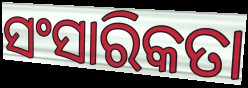
ସଂସାରିକତା